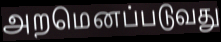
அறமெனப்படுவது